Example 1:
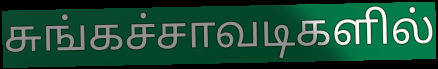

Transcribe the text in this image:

சுங்கச்சாவடிகளில்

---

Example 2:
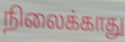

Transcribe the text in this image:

நிலைக்காது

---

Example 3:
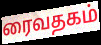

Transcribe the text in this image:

ரைவதகம்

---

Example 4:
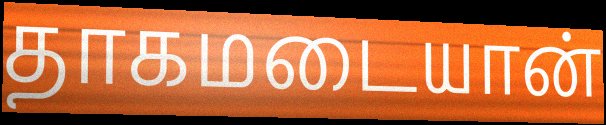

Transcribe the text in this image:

தாகமடையான்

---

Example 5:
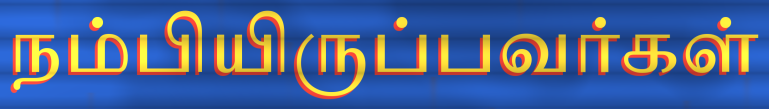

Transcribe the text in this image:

நம்பியிருப்பவர்கள்